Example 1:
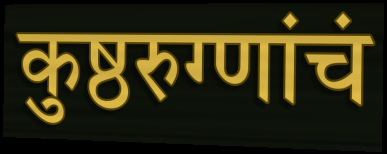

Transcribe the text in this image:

कुष्ठरुग्णांचं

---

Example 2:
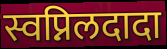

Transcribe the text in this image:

स्वप्निलदादा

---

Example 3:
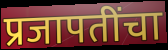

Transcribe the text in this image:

प्रजापतींचा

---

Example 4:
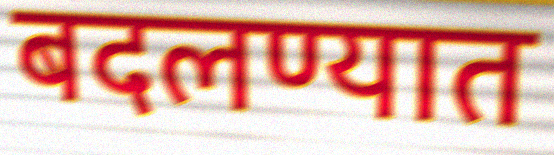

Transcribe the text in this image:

बदलण्यात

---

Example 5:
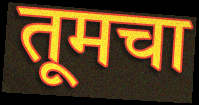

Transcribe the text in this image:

तूमचा